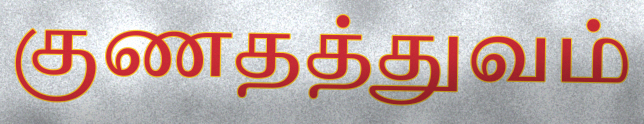
குணதத்துவம்